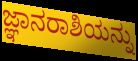
ಜ್ಞಾನರಾಶಿಯನ್ನು